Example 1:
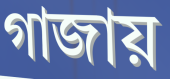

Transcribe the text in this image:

গাজায়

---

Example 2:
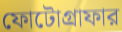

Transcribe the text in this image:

ফোটোগ্রাফার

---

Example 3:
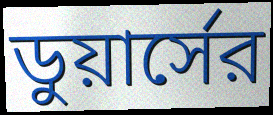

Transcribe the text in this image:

ডুয়ার্সের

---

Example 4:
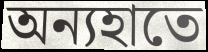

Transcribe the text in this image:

অন্যহাতে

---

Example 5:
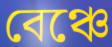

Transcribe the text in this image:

বেঞ্চে